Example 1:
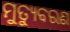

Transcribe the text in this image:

ମୁତ୍ୟୁବରଣ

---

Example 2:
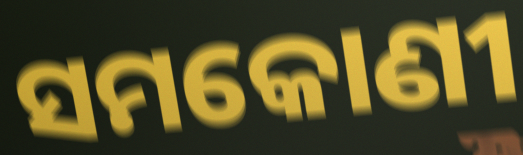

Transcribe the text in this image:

ସମକୋଣୀ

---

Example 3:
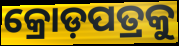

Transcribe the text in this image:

କ୍ରୋଡ଼ପତ୍ରକୁ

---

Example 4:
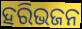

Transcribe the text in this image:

ହରିଭଜନ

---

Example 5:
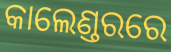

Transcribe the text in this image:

କାଲେଣ୍ଡରରେ